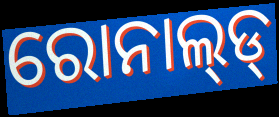
ରୋନାଲ୍‌ଡ୍